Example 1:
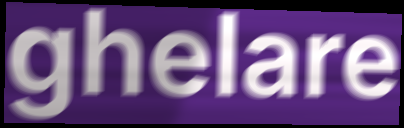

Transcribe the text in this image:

ghelare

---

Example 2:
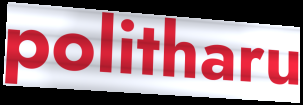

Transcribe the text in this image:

politharu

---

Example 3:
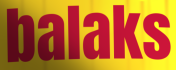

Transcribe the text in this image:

balaks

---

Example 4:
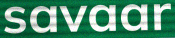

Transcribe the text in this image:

savaar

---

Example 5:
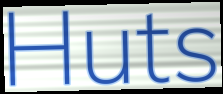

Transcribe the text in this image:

Huts